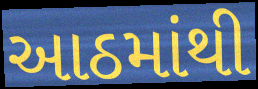
આઠમાંથી